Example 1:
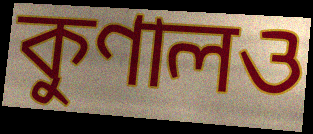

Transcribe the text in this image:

কুণালও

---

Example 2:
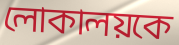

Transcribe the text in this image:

লোকালয়কে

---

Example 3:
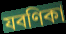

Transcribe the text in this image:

যবণিকা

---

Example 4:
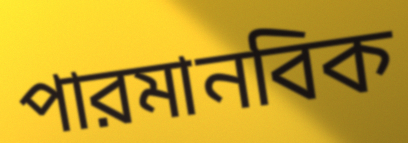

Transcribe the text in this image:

পারমানবিক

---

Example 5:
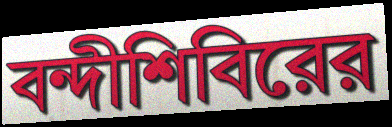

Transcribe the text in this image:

বন্দীশিবিরের